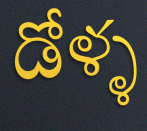
డోళ్ళ